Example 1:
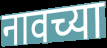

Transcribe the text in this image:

नावच्या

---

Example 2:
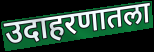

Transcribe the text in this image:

उदाहरणातला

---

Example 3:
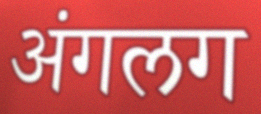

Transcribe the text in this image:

अंगलग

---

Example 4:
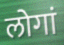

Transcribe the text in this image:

लोगां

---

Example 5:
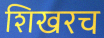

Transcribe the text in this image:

शिखरच